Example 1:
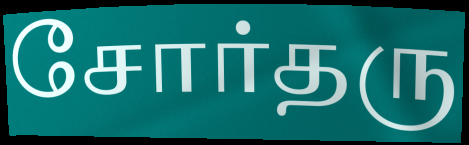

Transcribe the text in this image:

சோர்தரு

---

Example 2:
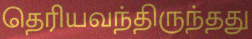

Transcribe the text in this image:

தெரியவந்திருந்தது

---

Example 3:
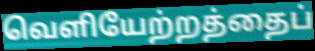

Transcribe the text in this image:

வெளியேற்றத்தைப்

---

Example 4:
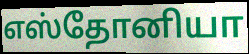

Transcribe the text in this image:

எஸ்தோனியா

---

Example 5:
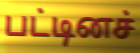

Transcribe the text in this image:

பட்டினச்